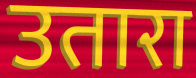
उतारा